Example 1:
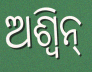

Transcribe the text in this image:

ଅଶ୍ବିନ୍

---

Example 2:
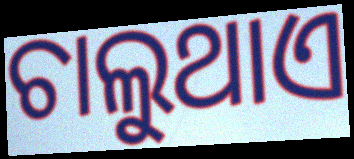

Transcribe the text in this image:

ଚାଲୁଥାଏ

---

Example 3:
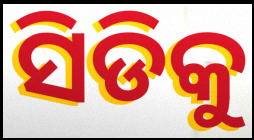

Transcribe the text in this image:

ସିଡିକୁ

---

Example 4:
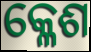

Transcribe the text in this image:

କ୍ଳେଶ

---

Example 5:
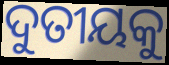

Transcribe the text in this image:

ଦୁତୀୟକୁ